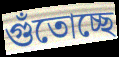
গুঁতোচ্ছে